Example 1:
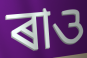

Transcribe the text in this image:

ৰাও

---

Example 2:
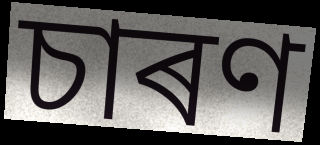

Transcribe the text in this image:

চাৰণ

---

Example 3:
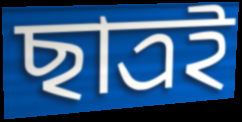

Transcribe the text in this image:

ছাত্ৰই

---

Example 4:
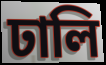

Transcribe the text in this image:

ঢালি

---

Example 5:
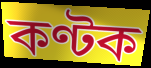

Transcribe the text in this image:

কণ্টক